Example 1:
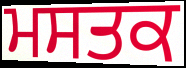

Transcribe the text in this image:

ਮਸਤਕ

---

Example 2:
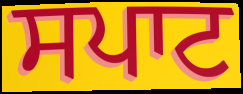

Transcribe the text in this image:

ਸਪਾਟ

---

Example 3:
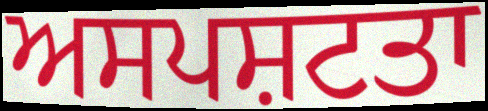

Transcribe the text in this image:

ਅਸਪਸ਼ਟਤਾ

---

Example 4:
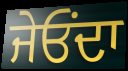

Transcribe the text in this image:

ਜੇਓੰਦਾ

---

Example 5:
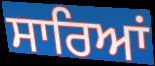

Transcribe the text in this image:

ਸਾਰਿਆਂ